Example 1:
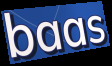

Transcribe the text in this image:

baas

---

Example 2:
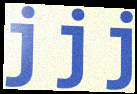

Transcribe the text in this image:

jjj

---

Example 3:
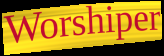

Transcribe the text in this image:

Worshiper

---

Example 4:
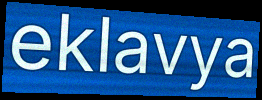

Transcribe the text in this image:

eklavya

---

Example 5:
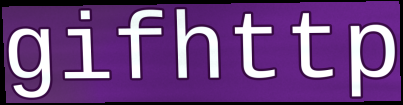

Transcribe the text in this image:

gifhttp